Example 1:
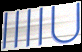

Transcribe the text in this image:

IIIIU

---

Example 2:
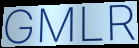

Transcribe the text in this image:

GMLR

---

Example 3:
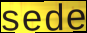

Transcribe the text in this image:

sede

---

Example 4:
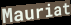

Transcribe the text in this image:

Mauriat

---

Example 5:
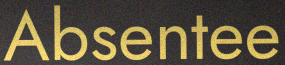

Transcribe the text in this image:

Absentee